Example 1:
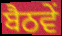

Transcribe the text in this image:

ਬੈਠਵੇਂ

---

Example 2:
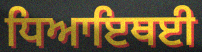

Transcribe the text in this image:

ਧਿਆਇਥਈ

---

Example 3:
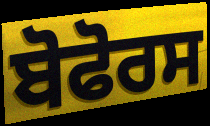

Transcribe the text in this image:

ਬੋਫੋਰਸ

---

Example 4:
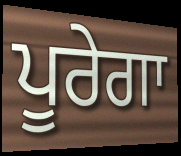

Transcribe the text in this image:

ਪੂਰੇਗਾ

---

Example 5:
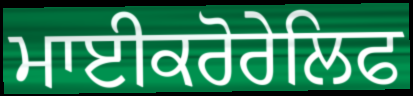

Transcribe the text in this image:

ਮਾਈਕਰੋਰੇਲਿਫ